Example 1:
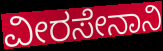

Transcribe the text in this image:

ವೀರಸೇನಾನಿ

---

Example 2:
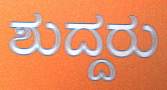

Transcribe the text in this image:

ಶುದ್ದರು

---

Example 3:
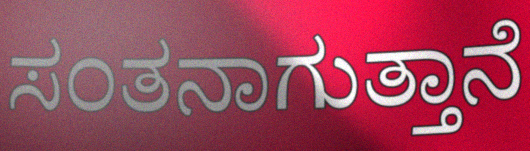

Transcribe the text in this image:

ಸಂತನಾಗುತ್ತಾನೆ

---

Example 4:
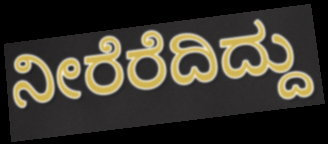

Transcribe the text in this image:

ನೀರೆರೆದಿದ್ದು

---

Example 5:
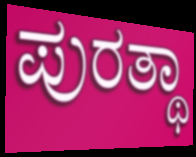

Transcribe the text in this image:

ಪುರತ್ಥಾ